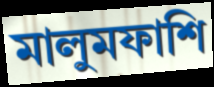
মালুমফাশি